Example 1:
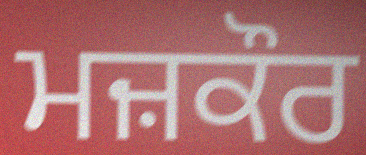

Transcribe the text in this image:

ਮਜ਼ਕੌਰ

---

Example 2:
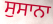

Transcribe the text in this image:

ਸੁਸਾਨਾ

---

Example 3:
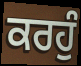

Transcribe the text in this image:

ਕਰਹੁੰ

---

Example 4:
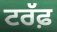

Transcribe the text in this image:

ਟਰੱਫ਼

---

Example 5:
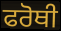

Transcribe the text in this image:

ਫਰੋਥੀ